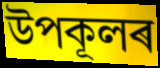
উপকূলৰ